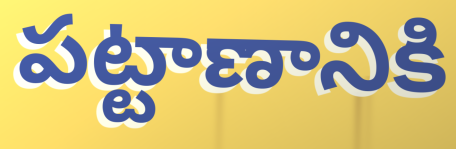
పట్టాణానికి